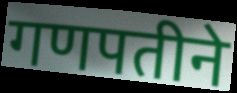
गणपतीने